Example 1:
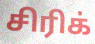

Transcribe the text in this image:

சிரிக்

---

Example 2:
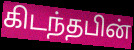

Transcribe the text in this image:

கிடந்தபின்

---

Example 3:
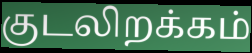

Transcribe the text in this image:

குடலிறக்கம்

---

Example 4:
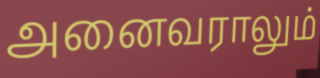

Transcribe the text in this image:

அனைவராலும்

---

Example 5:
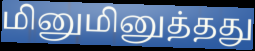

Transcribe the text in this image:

மினுமினுத்தது